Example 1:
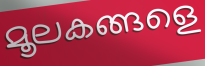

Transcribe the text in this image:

മൂലകങ്ങളെ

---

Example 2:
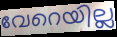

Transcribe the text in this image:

വേറെയില്ല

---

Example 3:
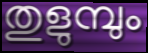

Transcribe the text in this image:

തുളുമ്പും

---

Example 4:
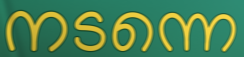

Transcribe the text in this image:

നടന്നെ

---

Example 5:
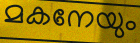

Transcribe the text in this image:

മകനേയും